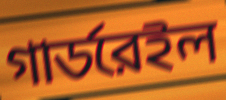
গার্ডরেইল